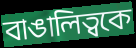
বাঙালিত্বকে